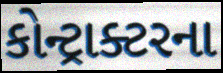
કોન્ટ્રાક્ટરના